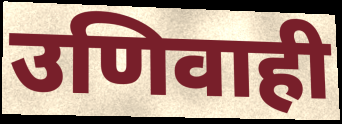
उणिवाही